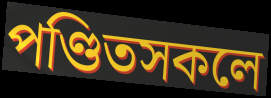
পণ্ডিতসকলে